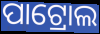
ପାଟ୍ରୋଲ